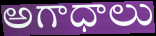
అగాధాలు